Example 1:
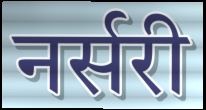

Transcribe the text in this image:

नर्सरी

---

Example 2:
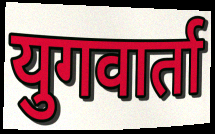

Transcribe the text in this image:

युगवार्ता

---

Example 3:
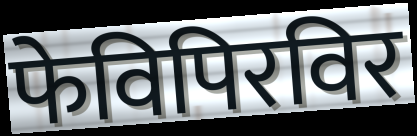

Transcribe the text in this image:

फेविपिरविर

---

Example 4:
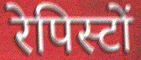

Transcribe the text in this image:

रेपिस्टों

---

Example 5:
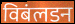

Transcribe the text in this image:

विबंलडन